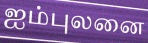
ஐம்புலனை